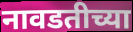
नावडतीच्या